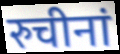
रुचीनां